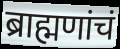
ब्राह्मणांचं